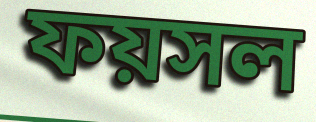
ফয়সল